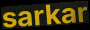
sarkar